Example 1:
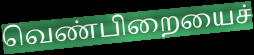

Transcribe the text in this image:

வெண்பிறையைச்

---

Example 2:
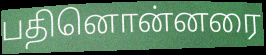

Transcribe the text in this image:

பதினொன்னரை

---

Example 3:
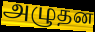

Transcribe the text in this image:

அழுதன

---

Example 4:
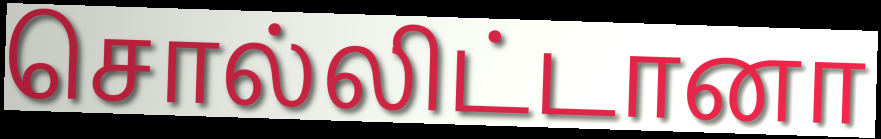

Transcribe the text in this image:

சொல்லிட்டானா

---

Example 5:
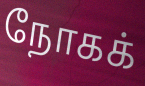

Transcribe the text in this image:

நோகக்